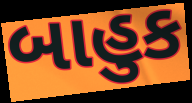
બાહુક